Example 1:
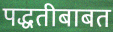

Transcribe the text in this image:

पद्धतीबाबत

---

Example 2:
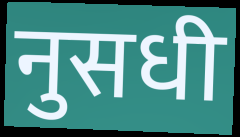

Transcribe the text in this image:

नुसधी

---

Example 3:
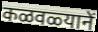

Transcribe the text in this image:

कळवळ्यानें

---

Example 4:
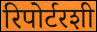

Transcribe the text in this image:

रिपोर्टरशी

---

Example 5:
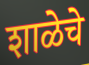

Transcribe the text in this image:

शाळेचे